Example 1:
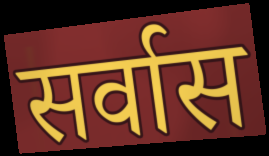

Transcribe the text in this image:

सर्वास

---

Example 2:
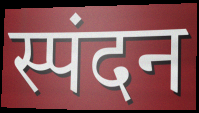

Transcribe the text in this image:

स्पंदन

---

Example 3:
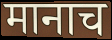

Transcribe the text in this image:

मानाच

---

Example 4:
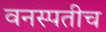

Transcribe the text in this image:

वनस्पतीच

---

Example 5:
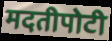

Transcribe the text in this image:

मदतीपोटी